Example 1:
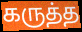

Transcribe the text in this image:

கருத்த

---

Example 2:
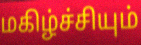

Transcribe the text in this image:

மகிழ்ச்சியும்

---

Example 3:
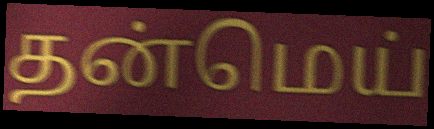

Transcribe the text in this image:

தன்மெய்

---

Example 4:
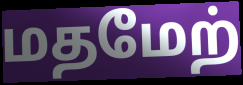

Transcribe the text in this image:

மதமேற்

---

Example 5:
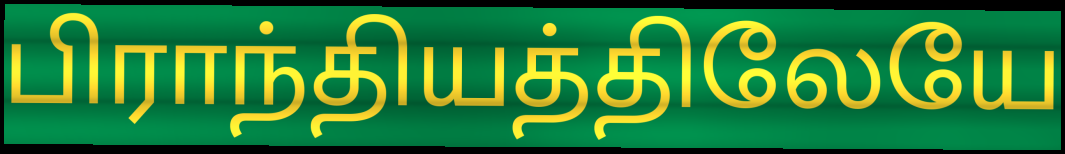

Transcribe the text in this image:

பிராந்தியத்திலேயே